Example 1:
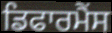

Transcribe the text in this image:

ਡਿਫਾਰਮੈਂਸ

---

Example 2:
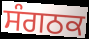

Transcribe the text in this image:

ਸੰਗਠਕ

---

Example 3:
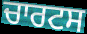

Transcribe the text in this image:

ਚਾਰਟਸ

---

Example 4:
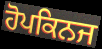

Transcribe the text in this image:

ਹੋਪਕਿਨਜ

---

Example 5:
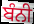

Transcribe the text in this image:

ਬੰਨੀ